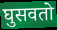
घुसवतो